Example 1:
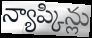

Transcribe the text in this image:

న్యాప్కిన్లు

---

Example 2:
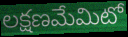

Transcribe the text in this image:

లక్షణమేమిటో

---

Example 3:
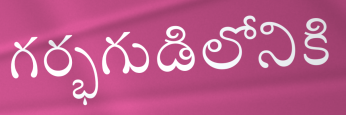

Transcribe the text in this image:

గర్భగుడిలోనికి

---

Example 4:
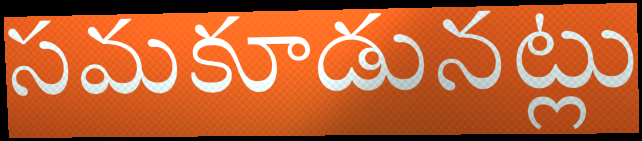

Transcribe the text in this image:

సమకూడునట్లు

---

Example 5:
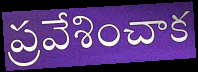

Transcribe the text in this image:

ప్రవేశించాక